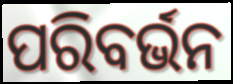
ପରିବର୍ଭନ